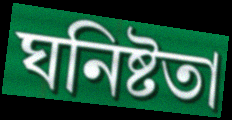
ঘনিষ্টতা